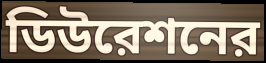
ডিউরেশনের